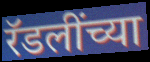
रॅडलींच्या